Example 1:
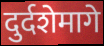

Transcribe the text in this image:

दुर्दशेमागे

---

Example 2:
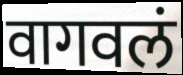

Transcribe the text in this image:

वागवलं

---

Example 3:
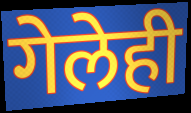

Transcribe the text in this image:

गेलेही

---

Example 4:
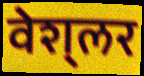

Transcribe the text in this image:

वेश्लर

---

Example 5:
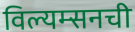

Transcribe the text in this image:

विल्यम्सनची